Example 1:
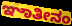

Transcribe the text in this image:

ಞಾತೀನಂ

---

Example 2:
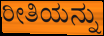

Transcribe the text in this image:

ರೀತಿಯನ್ನು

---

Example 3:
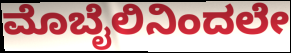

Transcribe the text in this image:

ಮೊಬೈಲಿನಿಂದಲೇ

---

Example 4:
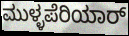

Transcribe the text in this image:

ಮುಳ್ಳಪೆರಿಯಾರ್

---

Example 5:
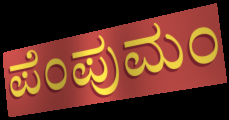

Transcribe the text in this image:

ಪೆಂಪುಮಂ